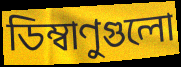
ডিম্বাণুগুলো